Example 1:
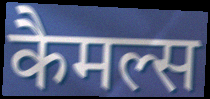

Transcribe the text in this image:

कैमल्स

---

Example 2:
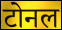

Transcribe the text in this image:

टोनल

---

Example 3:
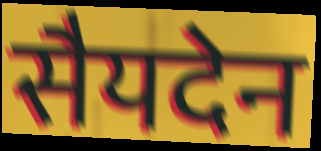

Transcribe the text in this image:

सैयदेन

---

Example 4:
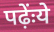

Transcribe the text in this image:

पढ़ेंःये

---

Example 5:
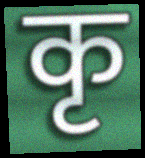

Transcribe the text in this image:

कृ